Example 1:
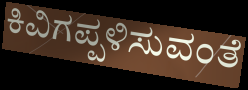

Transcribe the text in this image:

ಕಿವಿಗಪ್ಪಳಿಸುವಂತೆ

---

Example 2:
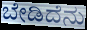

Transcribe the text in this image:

ಬೇಡಿದೆನು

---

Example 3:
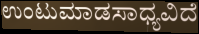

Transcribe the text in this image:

ಉಂಟುಮಾಡಸಾಧ್ಯವಿದೆ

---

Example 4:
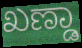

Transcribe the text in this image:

ಖಣ್ಡಾ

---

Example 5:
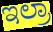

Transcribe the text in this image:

ಇಲ್ರಾ